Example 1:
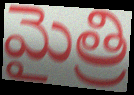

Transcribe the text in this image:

మైత్రి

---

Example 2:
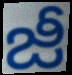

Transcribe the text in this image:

జీ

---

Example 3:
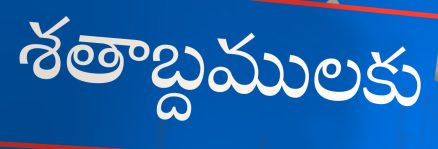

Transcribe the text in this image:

శతాబ్దములకు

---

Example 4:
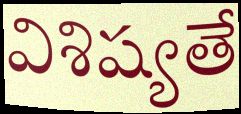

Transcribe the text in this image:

విశిష్యతే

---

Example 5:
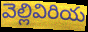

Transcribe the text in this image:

వెల్లివిరియ